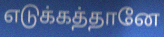
எடுக்கத்தானே